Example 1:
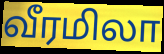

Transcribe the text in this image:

வீரமிலா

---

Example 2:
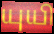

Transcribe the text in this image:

யுயி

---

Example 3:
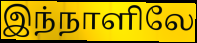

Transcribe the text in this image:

இந்நாளிலே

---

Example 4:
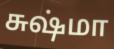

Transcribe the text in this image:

சுஷ்மா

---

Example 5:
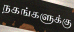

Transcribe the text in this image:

நகங்களுக்கு